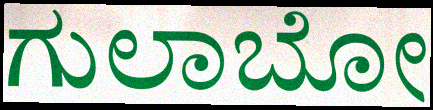
ಗುಲಾಬೋ